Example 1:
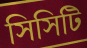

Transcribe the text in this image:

সিসিটি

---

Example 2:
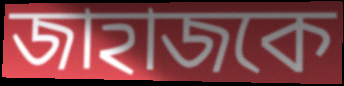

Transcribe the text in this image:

জাহাজকে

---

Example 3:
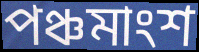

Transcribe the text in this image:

পঞ্চমাংশ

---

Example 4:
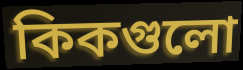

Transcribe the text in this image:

কিকগুলো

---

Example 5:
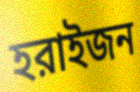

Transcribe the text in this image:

হরাইজন